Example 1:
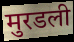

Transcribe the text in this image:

मुरडली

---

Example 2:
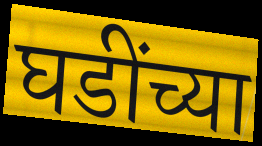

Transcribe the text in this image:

घडींच्या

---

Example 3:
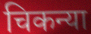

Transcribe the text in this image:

चिकन्या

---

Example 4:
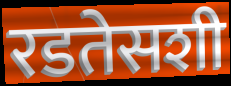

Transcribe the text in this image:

रडतेसशी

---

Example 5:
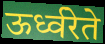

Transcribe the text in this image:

ऊर्ध्वरेते